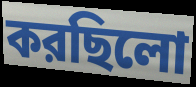
করছিলো